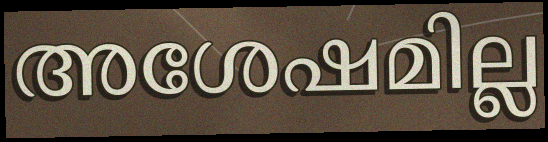
അശേഷമില്ല